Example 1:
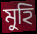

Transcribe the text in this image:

মুহি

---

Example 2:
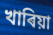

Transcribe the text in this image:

খাৰিয়া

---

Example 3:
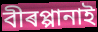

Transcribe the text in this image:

বীৰপ্পানাই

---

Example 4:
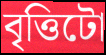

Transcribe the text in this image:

বৃত্তিটো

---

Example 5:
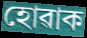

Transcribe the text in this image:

হোৱাক